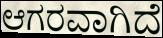
ಆಗರವಾಗಿದೆ